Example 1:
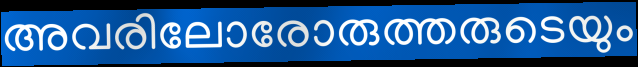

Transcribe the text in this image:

അവരിലോരോരുത്തരുടെയും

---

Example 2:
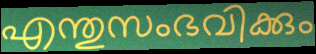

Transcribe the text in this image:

എന്തുസംഭവിക്കും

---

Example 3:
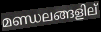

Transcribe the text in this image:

മണ്ഡലങ്ങളില്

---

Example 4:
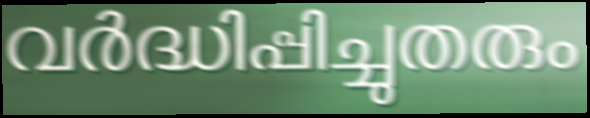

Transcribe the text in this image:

വർദ്ധിപ്പിച്ചുതരും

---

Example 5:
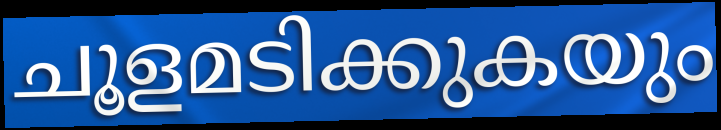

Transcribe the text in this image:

ചൂളമടിക്കുകയും